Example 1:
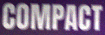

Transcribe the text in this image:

COMPACT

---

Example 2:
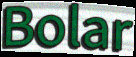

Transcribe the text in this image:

Bolar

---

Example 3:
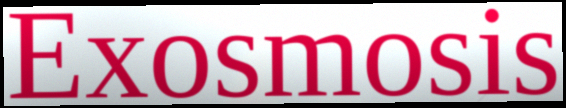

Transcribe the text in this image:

Exosmosis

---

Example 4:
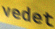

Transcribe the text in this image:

vedet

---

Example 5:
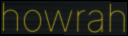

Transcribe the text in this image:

howrah